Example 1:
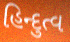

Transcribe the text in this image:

હિન્દુત્વ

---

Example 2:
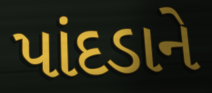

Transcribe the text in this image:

પાંદડાને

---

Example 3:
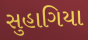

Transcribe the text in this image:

સુહાગિયા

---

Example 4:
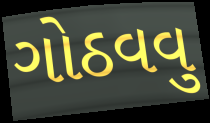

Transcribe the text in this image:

ગોઠવવુ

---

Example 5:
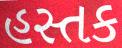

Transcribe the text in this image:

હસ્તક